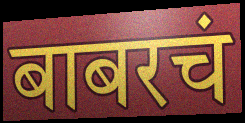
बाबरचं